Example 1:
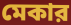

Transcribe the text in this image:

মেকার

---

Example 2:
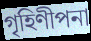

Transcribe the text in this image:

গৃহিণীপনা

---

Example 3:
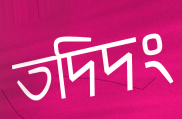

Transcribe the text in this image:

তদিদং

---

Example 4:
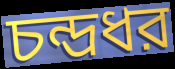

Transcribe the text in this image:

চন্দ্রধর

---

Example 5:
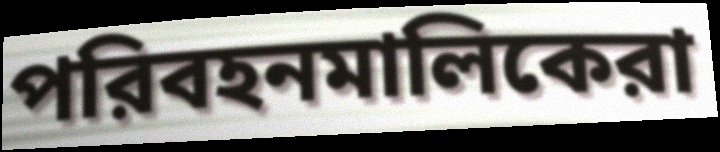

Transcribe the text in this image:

পরিবহনমালিকেরা